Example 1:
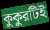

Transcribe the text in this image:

কুকুরটিই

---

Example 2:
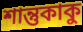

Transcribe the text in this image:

শান্তুকাকু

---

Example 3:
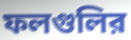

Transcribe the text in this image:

ফলগুলির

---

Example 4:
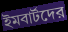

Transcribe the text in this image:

ইমবার্টদের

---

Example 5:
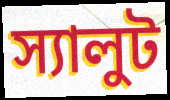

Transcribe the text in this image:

স্যালুট